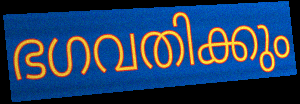
ഭഗവതിക്കും